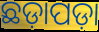
ଛଡ଼ାପଡ଼ା